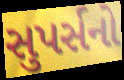
સુપર્સનો